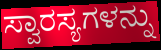
ಸ್ವಾರಸ್ಯಗಳನ್ನು